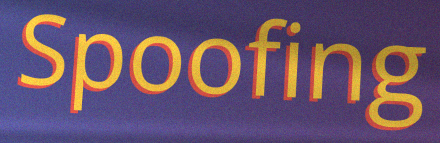
Spoofing